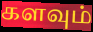
களவும்